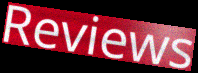
Reviews